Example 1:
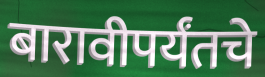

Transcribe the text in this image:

बारावीपर्यंतचे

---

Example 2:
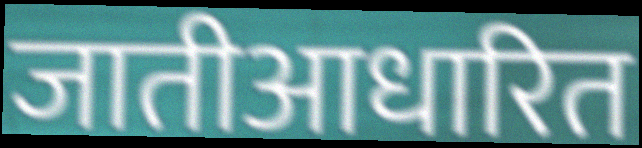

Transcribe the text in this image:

जातीआधारित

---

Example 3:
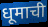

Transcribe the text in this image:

धूमाची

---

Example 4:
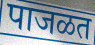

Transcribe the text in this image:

पाजळत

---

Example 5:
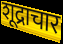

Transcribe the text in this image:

शूद्राचार